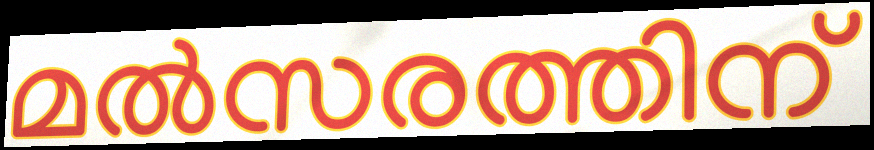
മൽസരത്തിന്